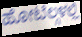
ಹೋಟೆಲ್ಗಳಲ್ಲಿ